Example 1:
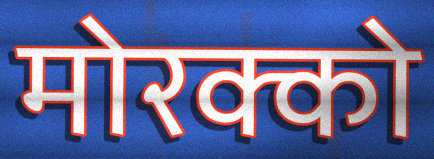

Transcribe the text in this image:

मोरक्को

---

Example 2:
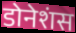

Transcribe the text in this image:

डोनेशंस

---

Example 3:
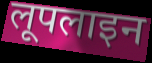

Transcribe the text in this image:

लूपलाइन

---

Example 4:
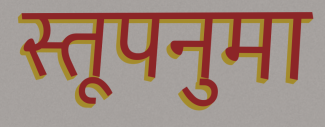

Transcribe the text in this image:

स्तूपनुमा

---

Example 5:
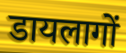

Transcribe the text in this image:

डायलागों